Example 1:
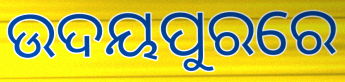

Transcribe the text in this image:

ଉଦୟପୁରରେ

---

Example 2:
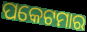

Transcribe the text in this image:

ପକେଟମାର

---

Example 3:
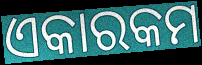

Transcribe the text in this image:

ଏକାରକମ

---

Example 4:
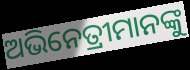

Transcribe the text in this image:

ଅଭିନେତ୍ରୀମାନଙ୍କୁ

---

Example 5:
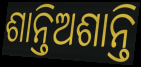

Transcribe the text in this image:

ଶାନ୍ତିଅଶାନ୍ତି